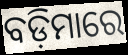
ବଡ଼ିମାରେ